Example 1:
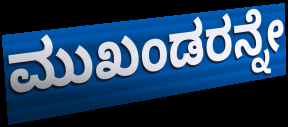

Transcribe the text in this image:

ಮುಖಂಡರನ್ನೇ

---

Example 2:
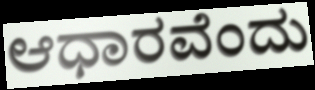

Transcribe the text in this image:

ಆಧಾರವೆಂದು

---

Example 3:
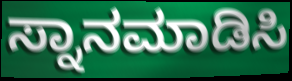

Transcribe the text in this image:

ಸ್ನಾನಮಾಡಿಸಿ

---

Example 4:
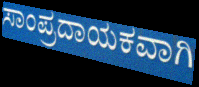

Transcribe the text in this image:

ಸಾಂಪ್ರದಾಯಕವಾಗಿ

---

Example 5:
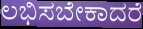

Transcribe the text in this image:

ಲಭಿಸಬೇಕಾದರೆ